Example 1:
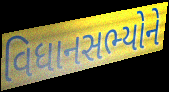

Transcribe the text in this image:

વિધાનસભ્યોને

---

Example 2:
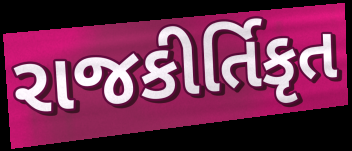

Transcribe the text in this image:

રાજકીર્તિકૃત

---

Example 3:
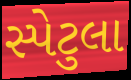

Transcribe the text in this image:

સ્પેટુલા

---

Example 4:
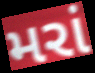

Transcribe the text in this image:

મરાં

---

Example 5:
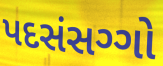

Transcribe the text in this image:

પદસંસગ્ગો